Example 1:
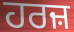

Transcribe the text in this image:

ਹਰਜ਼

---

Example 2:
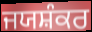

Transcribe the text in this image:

ਜਯਸ਼ੰਕਰ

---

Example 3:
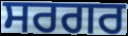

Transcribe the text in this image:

ਸਰਗਰ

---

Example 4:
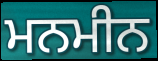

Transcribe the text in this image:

ਮਨਮੀਨ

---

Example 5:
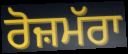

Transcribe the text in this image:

ਰੋਜ਼ਮੱਰਾ